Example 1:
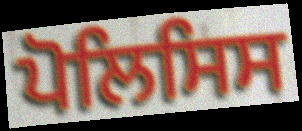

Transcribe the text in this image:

ਪੋਲਿਸਿਸ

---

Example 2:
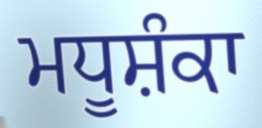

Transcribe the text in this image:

ਮਧੂਸ਼ੰਕਾ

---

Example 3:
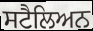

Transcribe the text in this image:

ਸਟੈਲਿਅਨ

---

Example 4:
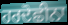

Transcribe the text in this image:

ਹਰਦੋਛੀਨਾ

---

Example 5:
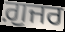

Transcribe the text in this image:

ਗ਼ੁਜਰ